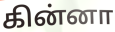
கின்னா